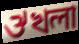
ঔখলা